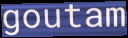
goutam